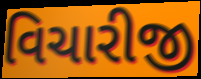
વિચારીજી